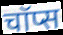
चॉप्स